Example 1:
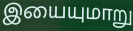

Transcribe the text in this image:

இயையுமாறு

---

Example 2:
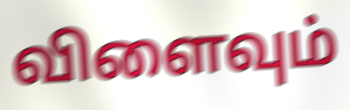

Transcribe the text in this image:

விளைவும்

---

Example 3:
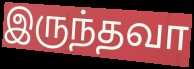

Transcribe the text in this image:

இருந்தவா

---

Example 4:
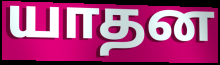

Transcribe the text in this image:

யாதன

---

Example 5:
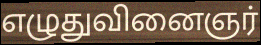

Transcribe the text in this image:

எழுதுவினைஞர்